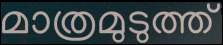
മാത്രമുടുത്ത്